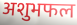
अशुभफल